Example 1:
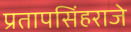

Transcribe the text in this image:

प्रतापसिंहराजे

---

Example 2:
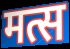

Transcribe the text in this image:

मत्स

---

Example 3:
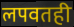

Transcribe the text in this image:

लपवतही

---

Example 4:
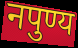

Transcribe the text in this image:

नपुण्य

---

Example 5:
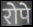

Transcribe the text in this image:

रोपे